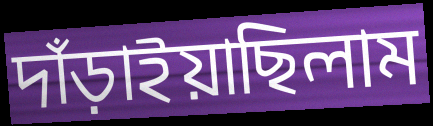
দাঁড়াইয়াছিলাম